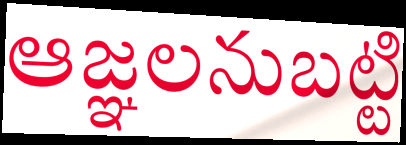
ఆజ్ఞలనుబట్టి